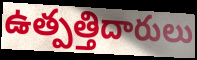
ఉత్పత్తిదారులు